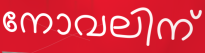
നോവലിന്